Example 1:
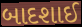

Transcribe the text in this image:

બાદશાઈ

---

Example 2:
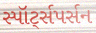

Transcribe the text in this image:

સ્પૉર્ટ્સપર્સન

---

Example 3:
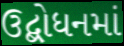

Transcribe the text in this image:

ઉદ્બોધનમાં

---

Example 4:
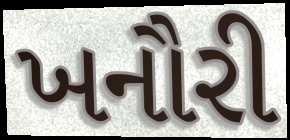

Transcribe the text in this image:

ખનૌરી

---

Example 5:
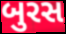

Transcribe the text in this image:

બુરસ